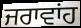
ਜਰਾਵਾਂਹ